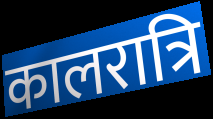
कालरात्रि